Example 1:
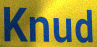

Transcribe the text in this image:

Knud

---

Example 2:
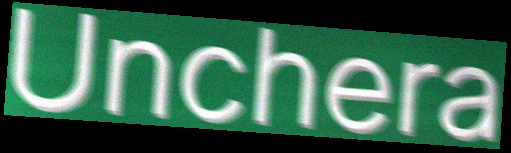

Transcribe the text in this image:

Unchera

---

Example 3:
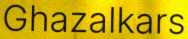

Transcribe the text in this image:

Ghazalkars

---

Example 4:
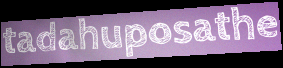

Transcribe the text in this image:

tadahuposathe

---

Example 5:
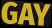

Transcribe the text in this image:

GAY